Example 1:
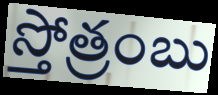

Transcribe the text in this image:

స్తోత్రంబు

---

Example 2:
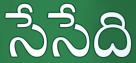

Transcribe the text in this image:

సేసేది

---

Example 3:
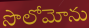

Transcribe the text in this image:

సొలోమోను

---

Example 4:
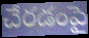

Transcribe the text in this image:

చేరడంపై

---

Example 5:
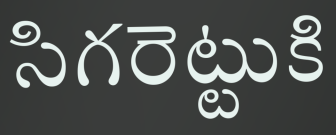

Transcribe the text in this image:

సిగరెట్టుకి